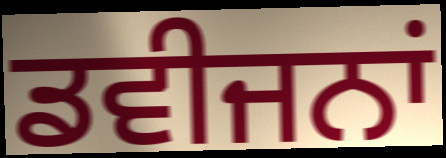
ਡਵੀਜਨਾਂ